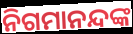
ନିଗମାନନ୍ଦଙ୍କ